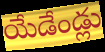
యేడేండ్లు